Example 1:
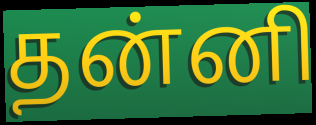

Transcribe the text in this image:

தன்னி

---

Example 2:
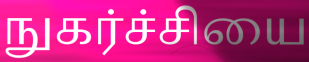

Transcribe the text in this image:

நுகர்ச்சியை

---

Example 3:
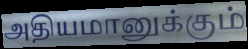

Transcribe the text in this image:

அதியமானுக்கும்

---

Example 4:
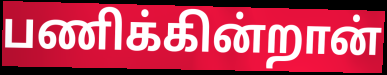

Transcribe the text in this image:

பணிக்கின்றான்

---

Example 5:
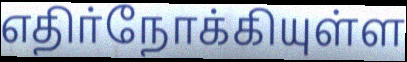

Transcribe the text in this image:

எதிர்நோக்கியுள்ள